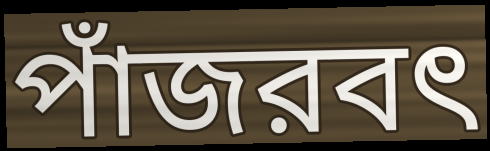
পাঁজরবৎ